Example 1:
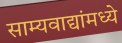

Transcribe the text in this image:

साम्यवाद्यांमध्ये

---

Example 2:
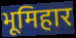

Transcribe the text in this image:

भूमिहार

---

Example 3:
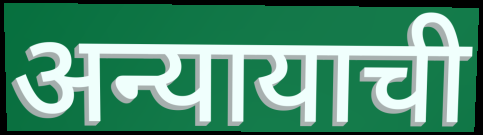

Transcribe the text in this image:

अन्यायाची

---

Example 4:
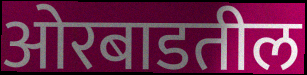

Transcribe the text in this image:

ओरबाडतील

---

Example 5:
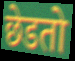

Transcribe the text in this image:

छेडतो